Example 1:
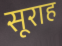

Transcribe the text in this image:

सूराह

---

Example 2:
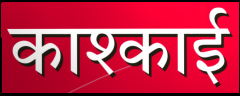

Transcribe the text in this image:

काश्काई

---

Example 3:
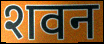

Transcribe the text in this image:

शवन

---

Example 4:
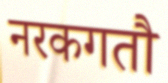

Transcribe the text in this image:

नरकगतौ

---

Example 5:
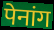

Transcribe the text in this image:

पेनांग